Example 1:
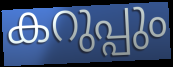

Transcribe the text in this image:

കറുപ്പും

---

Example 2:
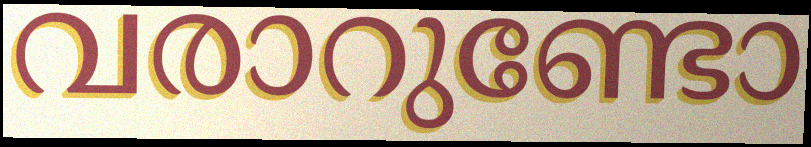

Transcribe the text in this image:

വരാറുണ്ടോ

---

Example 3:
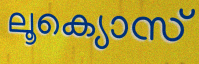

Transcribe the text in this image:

ലൂക്യൊസ്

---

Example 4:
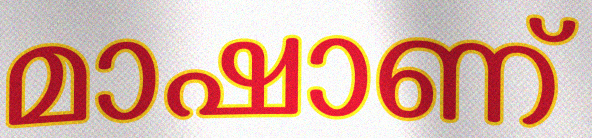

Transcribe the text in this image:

മാഷാണ്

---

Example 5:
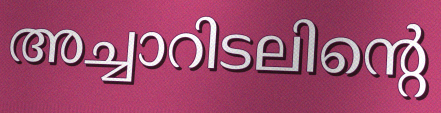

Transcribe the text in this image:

അച്ചാറിടലിന്റെ